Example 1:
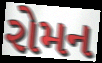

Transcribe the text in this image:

રોમન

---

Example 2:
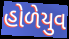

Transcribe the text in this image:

હોળેયુવ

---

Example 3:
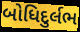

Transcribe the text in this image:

બોધિદુર્લભ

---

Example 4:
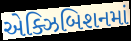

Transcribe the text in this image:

એક્ઝિબિશનમાં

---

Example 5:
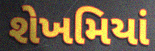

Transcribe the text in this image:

શેખમિયાં